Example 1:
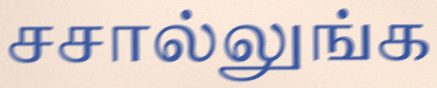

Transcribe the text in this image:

சசால்லுங்க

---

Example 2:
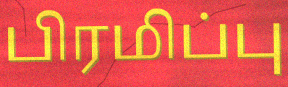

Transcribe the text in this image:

பிரமிப்பு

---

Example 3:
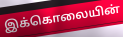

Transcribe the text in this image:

இக்கொலையின்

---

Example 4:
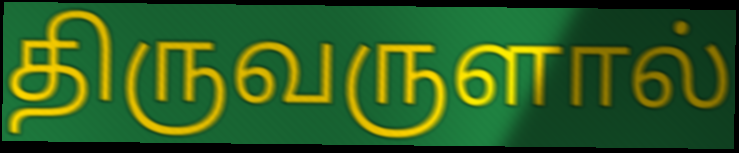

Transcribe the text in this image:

திருவருளால்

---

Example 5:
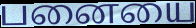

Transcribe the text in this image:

பனையை